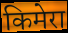
किमेरा